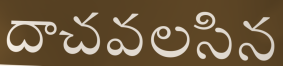
దాచవలసిన